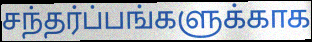
சந்தர்ப்பங்களுக்காக